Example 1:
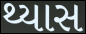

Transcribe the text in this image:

થ્યાસ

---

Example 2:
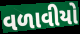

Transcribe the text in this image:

વળાવીયો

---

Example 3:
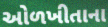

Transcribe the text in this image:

ઓળખીતાના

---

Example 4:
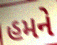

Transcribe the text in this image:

હમને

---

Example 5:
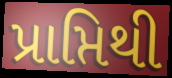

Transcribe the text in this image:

પ્રાપ્તિથી